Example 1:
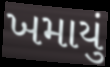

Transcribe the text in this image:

ખમાયું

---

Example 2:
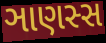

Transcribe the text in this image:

ઞાણસ્સ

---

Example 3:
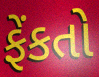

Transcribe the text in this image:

ફેંકતો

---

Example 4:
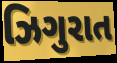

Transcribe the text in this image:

ઝિગુરાત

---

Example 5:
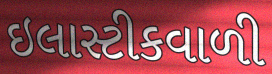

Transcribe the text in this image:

ઇલાસ્ટીકવાળી